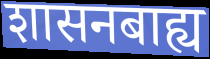
शासनबाह्य